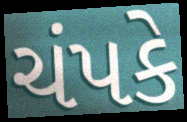
ચંપકે